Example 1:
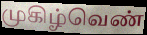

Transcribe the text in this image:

முகிழ்வெண்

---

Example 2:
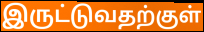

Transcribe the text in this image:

இருட்டுவதற்குள்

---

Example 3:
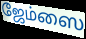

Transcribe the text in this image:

ஜேம்ஸை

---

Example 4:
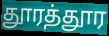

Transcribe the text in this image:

தூரத்தூர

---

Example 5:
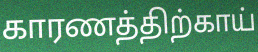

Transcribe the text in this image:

காரணத்திற்காய்